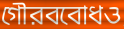
গৌরববোধও